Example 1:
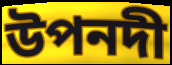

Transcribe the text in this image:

উপনদী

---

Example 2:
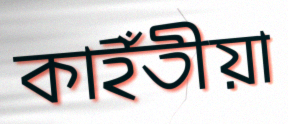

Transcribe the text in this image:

কাইঁতীয়া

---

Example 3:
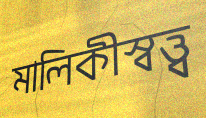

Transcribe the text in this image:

মালিকীস্বত্ত্ব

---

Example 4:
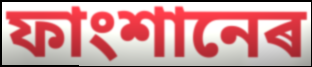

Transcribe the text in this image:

ফাংশানেৰ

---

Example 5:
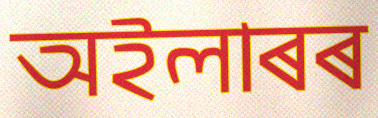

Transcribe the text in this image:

অইলাৰৰ